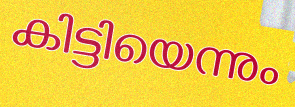
കിട്ടിയെന്നും